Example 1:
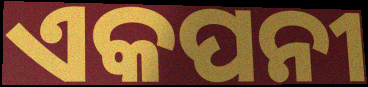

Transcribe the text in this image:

ଏକପନୀ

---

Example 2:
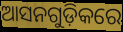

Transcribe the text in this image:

ଆସନଗୁଡ଼ିକରେ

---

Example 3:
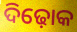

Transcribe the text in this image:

ଦିଢ଼ୋକ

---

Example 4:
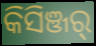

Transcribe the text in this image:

କିସିଞ୍ଜର୍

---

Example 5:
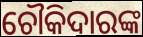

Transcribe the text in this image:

ଚୌକିଦାରଙ୍କ